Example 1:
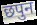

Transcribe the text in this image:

छपुन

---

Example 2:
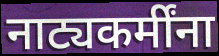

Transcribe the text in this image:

नाट्यकर्मींना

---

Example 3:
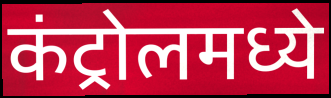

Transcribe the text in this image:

कंट्रोलमध्ये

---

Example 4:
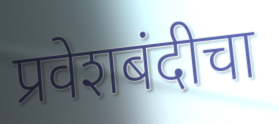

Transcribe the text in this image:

प्रवेशबंदीचा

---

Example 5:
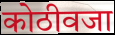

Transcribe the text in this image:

कोठीवजा